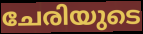
ചേരിയുടെ